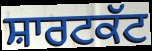
ਸ਼ਾਰਟਕੱਟ